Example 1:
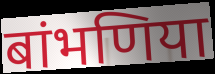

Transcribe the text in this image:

बांभणिया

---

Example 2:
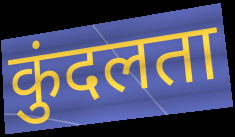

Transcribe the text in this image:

कुंदलता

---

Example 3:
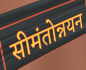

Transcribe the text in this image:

सीमंतोन्नयन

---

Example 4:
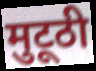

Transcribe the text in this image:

मुटूठी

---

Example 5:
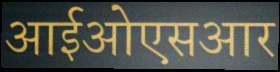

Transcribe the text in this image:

आईओएसआर